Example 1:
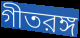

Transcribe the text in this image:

গীতরঙ্গ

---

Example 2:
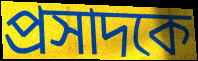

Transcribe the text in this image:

প্রসাদকে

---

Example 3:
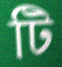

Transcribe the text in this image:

টি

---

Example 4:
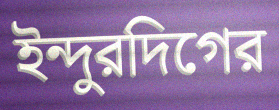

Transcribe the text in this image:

ইন্দুরদিগের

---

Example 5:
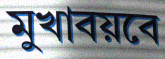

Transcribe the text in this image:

মুখাবয়বে